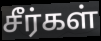
சீர்கள்